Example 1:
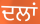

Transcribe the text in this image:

ਦਲਾਂ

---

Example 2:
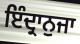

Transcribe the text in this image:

ਇੰਦ੍ਰਾਨੁਜਾ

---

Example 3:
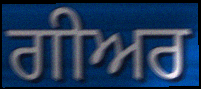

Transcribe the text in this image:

ਗੀਅਰ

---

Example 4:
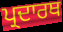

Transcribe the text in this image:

ਪ੍ਰਦਾਰਥ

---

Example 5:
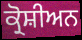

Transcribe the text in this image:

ਕ੍ਰੋਸ਼ੀਅਨ